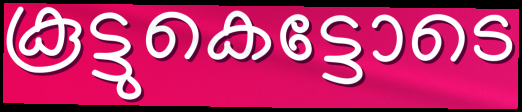
കൂട്ടുകെട്ടോടെ